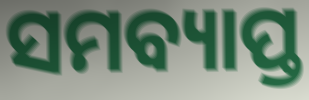
ସମବ୍ୟାପ୍ତ